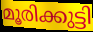
മൂരിക്കുട്ടി